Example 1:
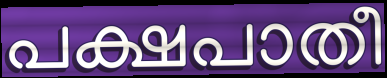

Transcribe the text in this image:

പക്ഷപാതീ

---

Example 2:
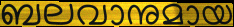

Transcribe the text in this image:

ബലവാനുമായ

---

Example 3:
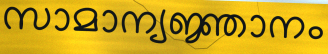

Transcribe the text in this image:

സാമാന്യജ്ഞാനം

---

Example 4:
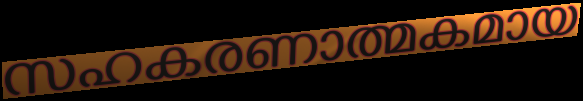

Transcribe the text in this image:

സഹകരണാത്മകമായ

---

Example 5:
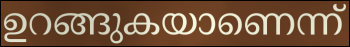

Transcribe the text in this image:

ഉറങ്ങുകയാണെന്ന്